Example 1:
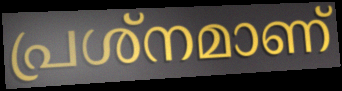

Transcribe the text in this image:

പ്രശ്നമാണ്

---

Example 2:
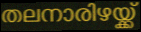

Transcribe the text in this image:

തലനാരിഴയ്ക്ക്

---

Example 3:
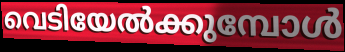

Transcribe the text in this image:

വെടിയേൽക്കുമ്പോൾ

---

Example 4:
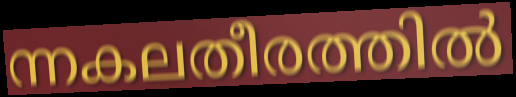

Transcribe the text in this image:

ന്നകലതീരത്തിൽ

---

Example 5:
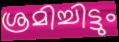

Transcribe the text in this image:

ശ്രമിച്ചിട്ടും